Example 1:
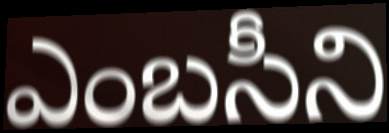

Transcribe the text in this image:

ఎంబసీని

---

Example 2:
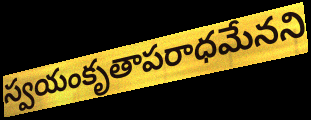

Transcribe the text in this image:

స్వయంకృతాపరాధమేనని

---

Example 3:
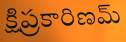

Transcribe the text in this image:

క్షిప్రకారిణమ్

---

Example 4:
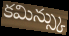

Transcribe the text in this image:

కమిన్స్కు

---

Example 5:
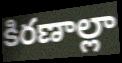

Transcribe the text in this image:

కిరణాల్లా